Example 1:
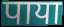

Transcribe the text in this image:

पाया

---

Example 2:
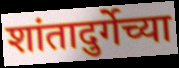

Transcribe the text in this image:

शांतादुर्गेच्या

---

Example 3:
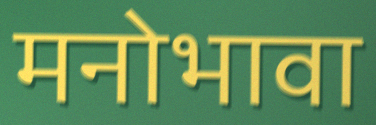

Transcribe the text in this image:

मनोभावा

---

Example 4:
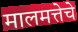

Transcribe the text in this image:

मालमत्तेचे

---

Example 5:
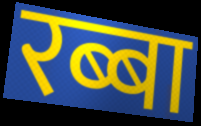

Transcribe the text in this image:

रब्बा